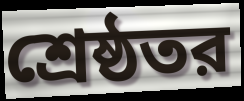
শ্রেষ্ঠতর